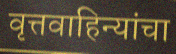
वृत्तवाहिन्यांचा